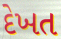
દેખત